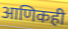
आणिकही